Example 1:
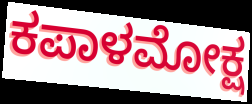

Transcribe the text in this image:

ಕಪಾಳಮೋಕ್ಷ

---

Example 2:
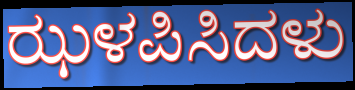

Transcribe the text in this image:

ಝಳಪಿಸಿದಳು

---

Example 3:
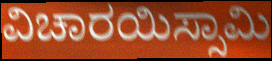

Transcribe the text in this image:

ವಿಚಾರಯಿಸ್ಸಾಮಿ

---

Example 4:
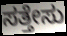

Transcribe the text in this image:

ಸತ್ತೇಸು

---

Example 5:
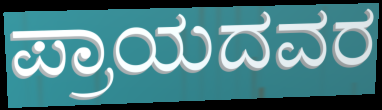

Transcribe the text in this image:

ಪ್ರಾಯದವರ